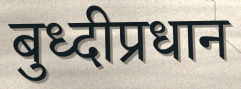
बुध्दीप्रधान